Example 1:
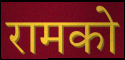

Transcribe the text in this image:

रामको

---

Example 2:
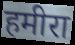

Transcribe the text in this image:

हमीरा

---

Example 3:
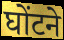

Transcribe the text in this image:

घोंटने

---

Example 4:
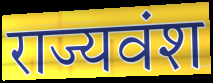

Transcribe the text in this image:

राज्यवंश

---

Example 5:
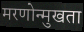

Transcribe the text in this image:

मरणोन्मुखता